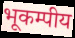
भूकम्पीय